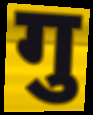
गु